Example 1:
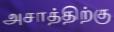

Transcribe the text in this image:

அசாத்திற்கு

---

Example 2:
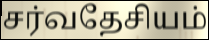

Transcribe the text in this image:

சர்வதேசியம்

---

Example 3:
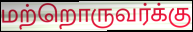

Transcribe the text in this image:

மற்றொருவர்க்கு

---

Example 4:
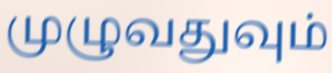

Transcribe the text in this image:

முழுவதுவும்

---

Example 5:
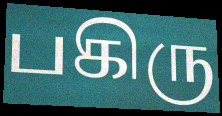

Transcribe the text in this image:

பகிரு